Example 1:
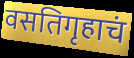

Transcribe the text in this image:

वसतिगृहाचं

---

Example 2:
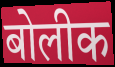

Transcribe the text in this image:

बोलीक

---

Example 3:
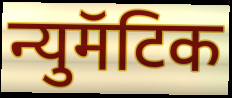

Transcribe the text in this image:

न्युमॅटिक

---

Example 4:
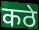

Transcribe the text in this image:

कठे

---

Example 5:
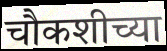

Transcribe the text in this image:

चौकशीच्या